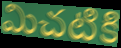
మిచటికి